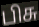
பிசு